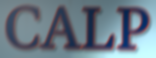
CALP